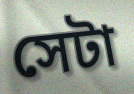
সেটা